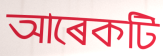
আৰেকটি